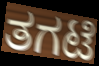
ತಗಟೆ